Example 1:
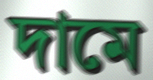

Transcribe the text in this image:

দামে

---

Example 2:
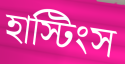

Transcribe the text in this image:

হাস্টিংস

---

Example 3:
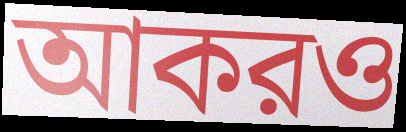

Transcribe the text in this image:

আকরও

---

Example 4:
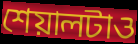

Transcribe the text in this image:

শেয়ালটাও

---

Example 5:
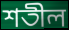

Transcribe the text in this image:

শতীল